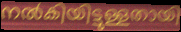
നൽകിയിട്ടുള്ളതായി